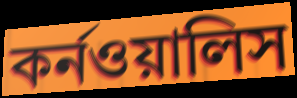
কর্নওয়ালিস